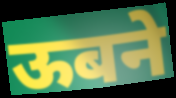
ऊबने